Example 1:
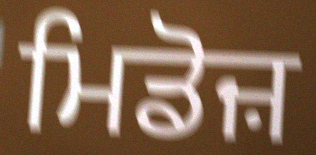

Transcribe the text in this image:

ਮਿਡੋਜ਼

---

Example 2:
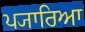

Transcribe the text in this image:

ਪ੍ਯਾਰਿਆ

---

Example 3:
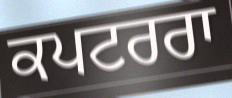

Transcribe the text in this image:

ਕਪਟਰਰਾ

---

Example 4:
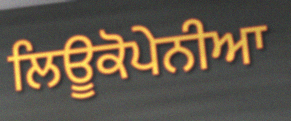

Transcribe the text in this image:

ਲਿਊਕੋਪੇਨੀਆ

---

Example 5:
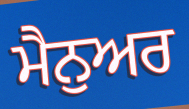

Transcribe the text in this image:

ਮੈਨੁਅਰ